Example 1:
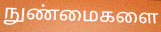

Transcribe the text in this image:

நுண்மைகளை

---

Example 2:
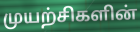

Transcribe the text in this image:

முயற்சிகளின்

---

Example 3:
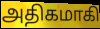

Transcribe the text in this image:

அதிகமாகி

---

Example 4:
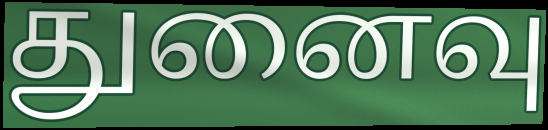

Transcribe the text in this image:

துனைவு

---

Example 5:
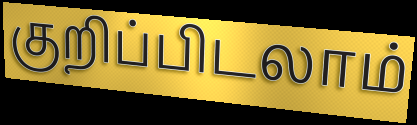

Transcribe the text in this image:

குறிப்பிடலாம்